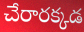
చేరారక్కడ